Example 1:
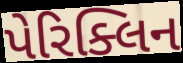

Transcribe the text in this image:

પેરિક્લિન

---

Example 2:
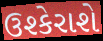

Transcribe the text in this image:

ઉશ્કેરાશે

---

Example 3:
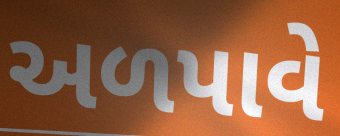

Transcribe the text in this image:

અળપાવે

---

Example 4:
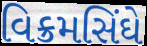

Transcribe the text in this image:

વિક્રમસિંઘે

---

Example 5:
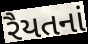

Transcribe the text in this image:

રૈયતનાં